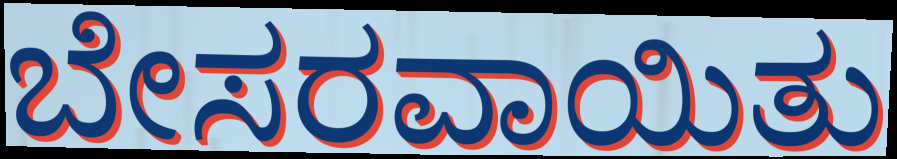
ಬೇಸರವಾಯಿತು